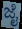
ಜೈ